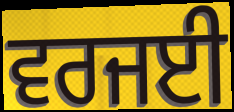
ਵਰਜਈ